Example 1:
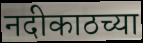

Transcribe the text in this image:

नदीकाठच्या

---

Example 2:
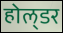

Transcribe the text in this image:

होल्डर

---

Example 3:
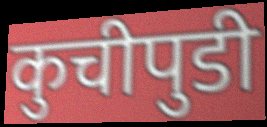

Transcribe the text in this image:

कुचीपुडी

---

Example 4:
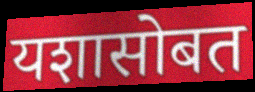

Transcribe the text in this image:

यशासोबत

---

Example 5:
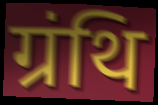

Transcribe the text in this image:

ग्रंथि